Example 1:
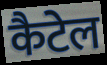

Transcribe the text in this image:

कैटेल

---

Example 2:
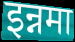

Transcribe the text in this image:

इन्नमा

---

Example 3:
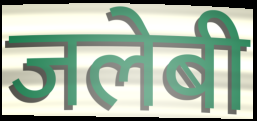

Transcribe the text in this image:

जलेबी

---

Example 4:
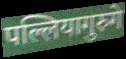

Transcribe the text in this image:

पल्लियागुरुगे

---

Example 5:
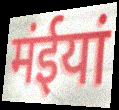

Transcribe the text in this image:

मंईयां